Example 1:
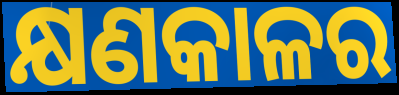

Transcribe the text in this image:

କ୍ଷଣକାଳର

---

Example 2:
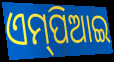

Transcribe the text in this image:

ଏମ୍‌ପିଆଇ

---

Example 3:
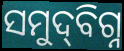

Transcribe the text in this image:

ସମୁଦ୍‌ବିଗ୍ନ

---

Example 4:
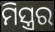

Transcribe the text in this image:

ମିସ୍ତ୍ରର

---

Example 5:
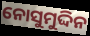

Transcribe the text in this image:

ନୋସୁମୁଦ୍ଦିନ